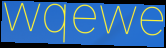
wqewe